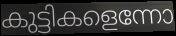
കുട്ടികളെന്നോ